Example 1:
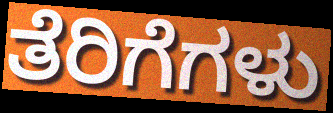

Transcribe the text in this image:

ತೆರಿಗೆಗಳು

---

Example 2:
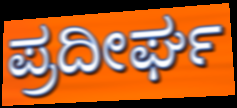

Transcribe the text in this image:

ಪ್ರದೀರ್ಘ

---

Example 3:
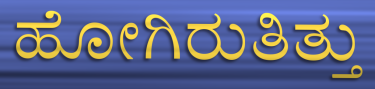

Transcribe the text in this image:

ಹೋಗಿರುತಿತ್ತು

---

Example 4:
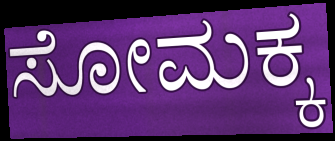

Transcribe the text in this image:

ಸೋಮಕ್ಕ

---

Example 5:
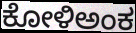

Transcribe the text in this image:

ಕೋಳಿಅಂಕ